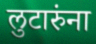
लुटारुंना